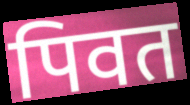
पिवत